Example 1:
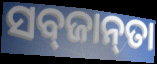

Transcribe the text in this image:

ସବ୍‌ଜାନ୍‌ତା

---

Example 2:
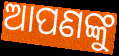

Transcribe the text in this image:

ଆପଣଙ୍କୁ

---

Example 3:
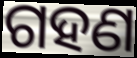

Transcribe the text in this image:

ଗହଣ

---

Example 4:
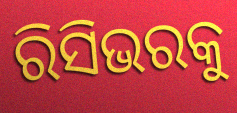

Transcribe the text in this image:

ରିସିଭରକୁ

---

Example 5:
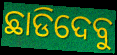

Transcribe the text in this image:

ଛାଡିଦେବୁ